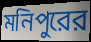
মনিপুরের